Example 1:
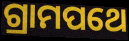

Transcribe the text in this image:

ଗ୍ରାମପଥେ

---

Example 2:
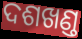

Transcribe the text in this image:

ଦଶଖଣ୍ଡ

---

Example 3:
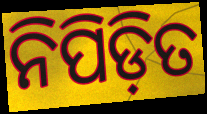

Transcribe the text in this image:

ନିପିଡ଼ିତ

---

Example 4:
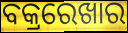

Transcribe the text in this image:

ବକ୍ରରେଖାର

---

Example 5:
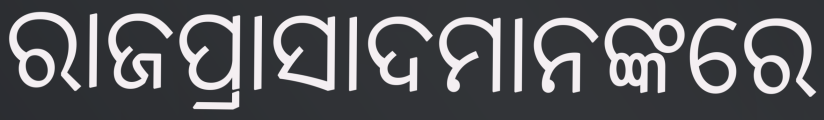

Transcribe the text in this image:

ରାଜପ୍ରାସାଦମାନଙ୍କରେ